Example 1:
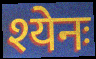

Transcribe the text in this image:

श्येनः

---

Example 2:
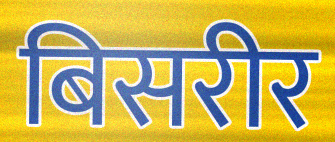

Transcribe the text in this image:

बिसरीर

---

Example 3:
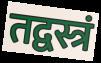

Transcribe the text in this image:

तद्वस्त्रं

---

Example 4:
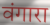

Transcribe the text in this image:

वंगारा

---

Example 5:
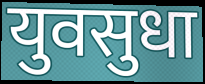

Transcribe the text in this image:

युवसुधा